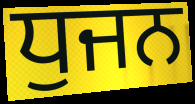
ਧੁਜਨ